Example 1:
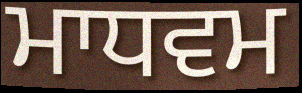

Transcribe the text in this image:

ਮਾਧਵਮ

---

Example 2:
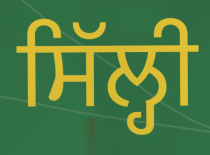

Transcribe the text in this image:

ਸਿੱਲ੍ਹੀ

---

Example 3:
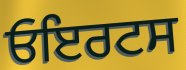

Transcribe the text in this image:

ਓਇਰਟਸ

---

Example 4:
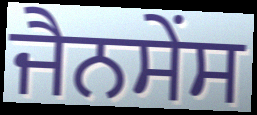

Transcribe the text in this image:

ਜੈਨਸੇਂਸ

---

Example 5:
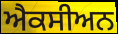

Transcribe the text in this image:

ਐਕਸੀਅਨ